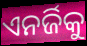
ଏନର୍ଜିକୁ